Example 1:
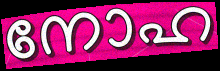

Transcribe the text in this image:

നോഹ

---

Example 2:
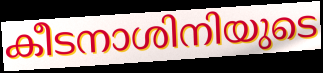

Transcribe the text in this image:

കീടനാശിനിയുടെ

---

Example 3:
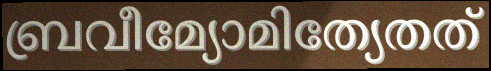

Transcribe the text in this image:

ബ്രവീമ്യോമിത്യേതത്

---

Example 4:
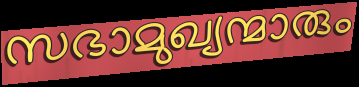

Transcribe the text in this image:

സഭാമുഖ്യന്മാരും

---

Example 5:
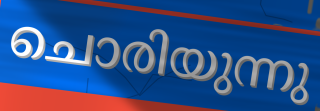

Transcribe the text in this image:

ചൊരിയുന്നു